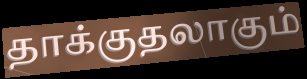
தாக்குதலாகும்